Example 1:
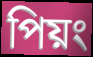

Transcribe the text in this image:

পিয়ং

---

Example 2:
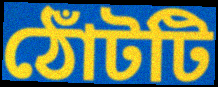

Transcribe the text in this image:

ঠোঁটটি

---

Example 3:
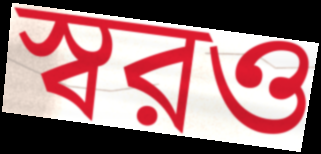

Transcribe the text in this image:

স্বরও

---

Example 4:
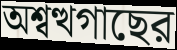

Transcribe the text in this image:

অশ্বত্থগাছের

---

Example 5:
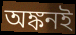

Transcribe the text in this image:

অঙ্কনই